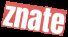
znate